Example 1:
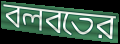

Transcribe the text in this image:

বলবতের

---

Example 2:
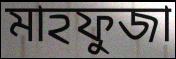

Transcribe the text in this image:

মাহফুজা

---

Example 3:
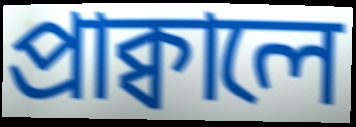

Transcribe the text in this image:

প্রাক্বালে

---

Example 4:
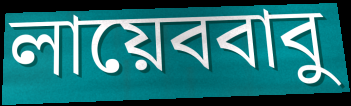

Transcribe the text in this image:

লায়েববাবু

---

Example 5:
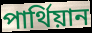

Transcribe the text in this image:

পার্থিয়ান